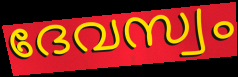
ദേവസ്വം